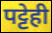
पट्टेही